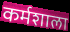
कर्मशाला